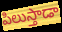
పిలుస్తాడా